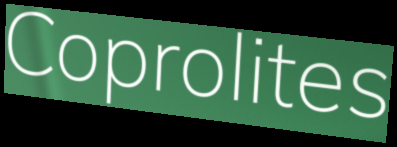
Coprolites